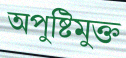
অপুষ্টিমুক্ত